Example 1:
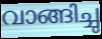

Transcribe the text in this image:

വാങ്ങിച്ചു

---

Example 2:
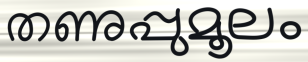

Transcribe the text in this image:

തണുപ്പുമൂലം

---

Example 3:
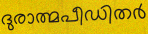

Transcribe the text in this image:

ദുരാത്മപീഡിതർ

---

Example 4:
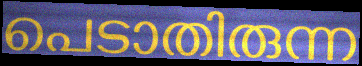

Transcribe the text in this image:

പെടാതിരുന്ന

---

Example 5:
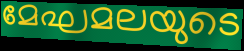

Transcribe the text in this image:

മേഘമലയുടെ